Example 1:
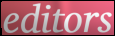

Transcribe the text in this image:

editors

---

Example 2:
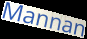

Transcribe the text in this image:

Mannan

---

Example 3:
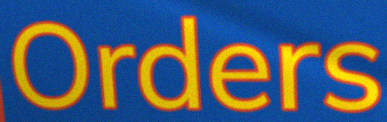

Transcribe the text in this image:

Orders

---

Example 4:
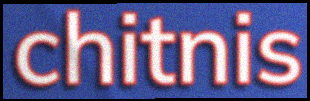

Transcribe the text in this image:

chitnis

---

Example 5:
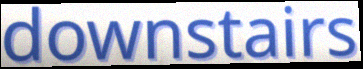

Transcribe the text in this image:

downstairs